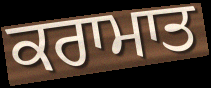
ਕਰਾਮਾਤ